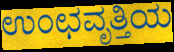
ಉಂಛವೃತ್ತಿಯ